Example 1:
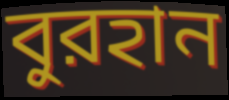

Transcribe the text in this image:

বুরহান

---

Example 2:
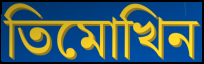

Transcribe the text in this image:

তিমোখিন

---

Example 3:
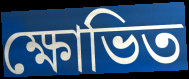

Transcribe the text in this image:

ক্ষোভিত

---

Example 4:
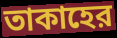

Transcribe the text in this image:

তাকাহের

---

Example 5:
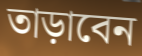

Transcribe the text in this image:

তাড়াবেন